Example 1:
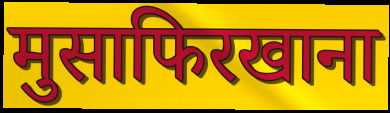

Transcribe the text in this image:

मुसाफिरखाना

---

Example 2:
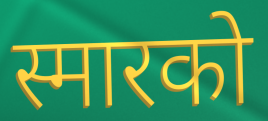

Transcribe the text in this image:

स्मारको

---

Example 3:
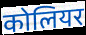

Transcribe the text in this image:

कोलियर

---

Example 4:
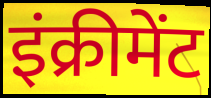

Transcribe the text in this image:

इंक्रीमेंट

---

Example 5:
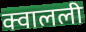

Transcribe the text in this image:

क्वालली